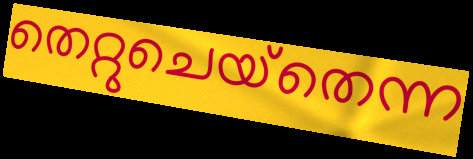
തെറ്റുചെയ്‌തെന്ന